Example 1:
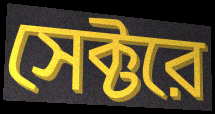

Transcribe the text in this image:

সেক্টরে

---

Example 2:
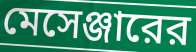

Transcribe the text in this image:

মেসেঞ্জারের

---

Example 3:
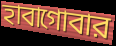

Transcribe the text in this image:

হাবাগোবার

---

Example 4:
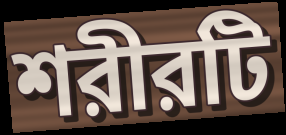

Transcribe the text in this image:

শরীরটি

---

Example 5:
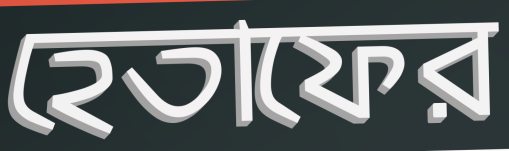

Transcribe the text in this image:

হেতাফের